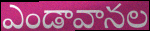
ఎండావానల